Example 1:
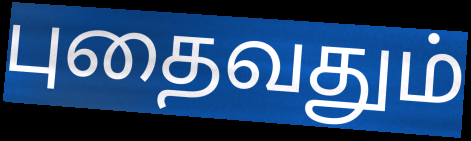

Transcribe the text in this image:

புதைவதும்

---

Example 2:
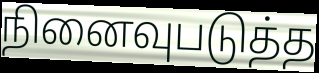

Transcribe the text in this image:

நினைவுபடுத்த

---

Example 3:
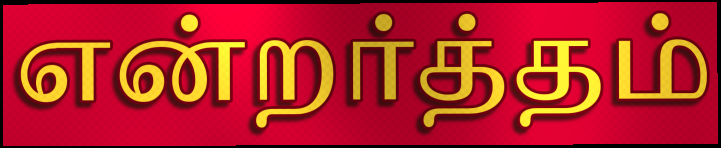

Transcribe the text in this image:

என்றர்த்தம்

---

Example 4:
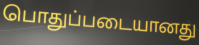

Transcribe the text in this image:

பொதுப்படையானது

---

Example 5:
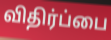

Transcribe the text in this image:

விதிர்ப்பை